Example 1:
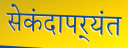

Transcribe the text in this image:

सेकंदापर्यंत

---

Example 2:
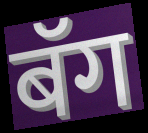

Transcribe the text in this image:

बॅग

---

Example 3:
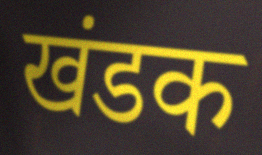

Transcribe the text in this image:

खंडक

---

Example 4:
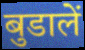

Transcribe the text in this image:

बुडालें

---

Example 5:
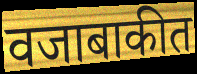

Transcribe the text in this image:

वजाबाकीत